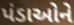
પંડાઓને